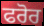
ਫਰੋਰ